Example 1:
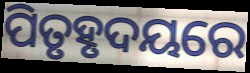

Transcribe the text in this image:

ପିତୃହୃଦୟରେ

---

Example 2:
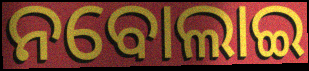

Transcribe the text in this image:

ନବୋଲାଇ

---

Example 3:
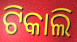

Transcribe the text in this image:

ଟିକାଲି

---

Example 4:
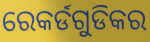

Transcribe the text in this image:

ରେକର୍ଡଗୁଡିକର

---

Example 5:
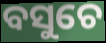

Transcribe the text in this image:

ବସୁଚେ